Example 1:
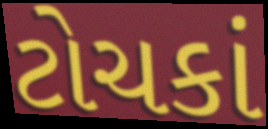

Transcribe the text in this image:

ટોચકાં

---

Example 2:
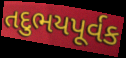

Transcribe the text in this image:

તદુભયપૂર્વક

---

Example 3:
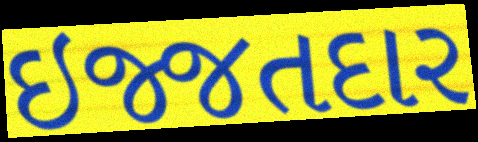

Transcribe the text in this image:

ઇજ્જતદાર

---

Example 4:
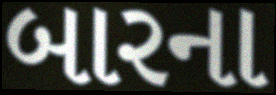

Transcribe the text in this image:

બારના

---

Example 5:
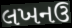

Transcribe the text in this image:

લખનઉ